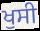
ਖੁਸੀ